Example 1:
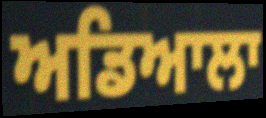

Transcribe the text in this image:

ਅਡਿਆਲਾ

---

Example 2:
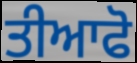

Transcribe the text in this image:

ਤੀਆਫੋ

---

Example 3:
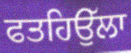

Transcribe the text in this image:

ਫਤਹਿਉੱਲਾ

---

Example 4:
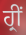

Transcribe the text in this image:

ਹ੍ਰੀਂ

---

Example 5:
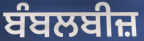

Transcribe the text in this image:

ਬੰਬਲਬੀਜ਼